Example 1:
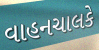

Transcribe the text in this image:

વાહનચાલકે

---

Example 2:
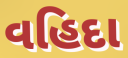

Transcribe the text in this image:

વહિદા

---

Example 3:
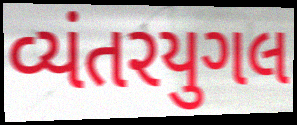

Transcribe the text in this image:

વ્યંતરયુગલ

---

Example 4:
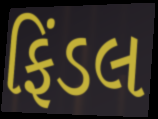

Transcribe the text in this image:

ફિંડલ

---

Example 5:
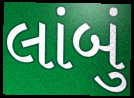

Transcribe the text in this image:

લાંબું